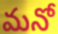
మనో